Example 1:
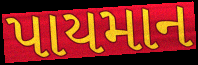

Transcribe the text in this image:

પાયમાન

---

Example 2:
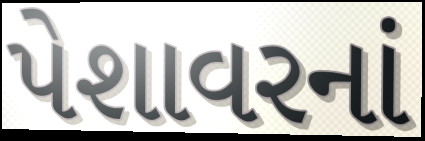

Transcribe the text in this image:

પેશાવરનાં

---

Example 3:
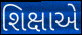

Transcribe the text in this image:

શિક્ષાએ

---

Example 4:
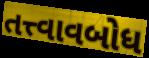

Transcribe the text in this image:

તત્ત્વાવબોધ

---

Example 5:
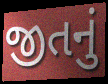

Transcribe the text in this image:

જીતનું